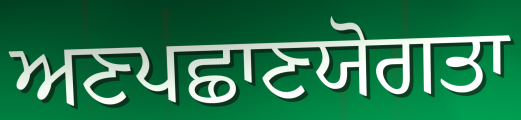
ਅਣਪਛਾਣਯੋਗਤਾ